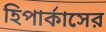
হিপার্কাসের